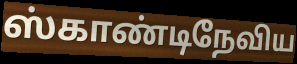
ஸ்காண்டிநேவிய